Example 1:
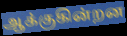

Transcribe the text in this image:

ஆக்குகின்றன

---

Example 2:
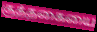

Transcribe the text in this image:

குத்தகையை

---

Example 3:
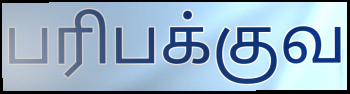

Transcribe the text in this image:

பரிபக்குவ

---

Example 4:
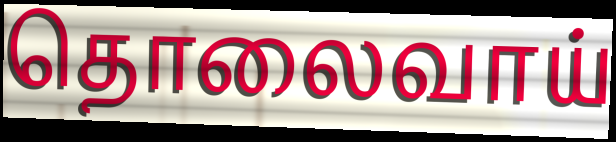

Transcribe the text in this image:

தொலைவாய்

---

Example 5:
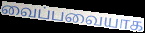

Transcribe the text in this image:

வைப்பவையாக